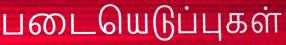
படையெடுப்புகள்